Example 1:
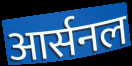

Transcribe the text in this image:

आर्सनल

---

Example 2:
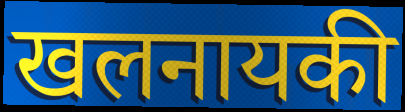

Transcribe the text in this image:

खलनायकी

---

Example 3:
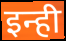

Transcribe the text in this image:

इन्ही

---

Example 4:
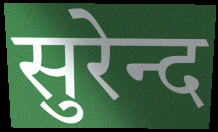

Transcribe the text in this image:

सुरेन्द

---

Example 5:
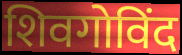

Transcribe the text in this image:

शिवगोविंद